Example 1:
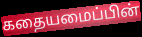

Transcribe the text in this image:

கதையமைப்பின்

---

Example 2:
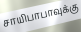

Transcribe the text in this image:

சாயிபாபாவுக்கு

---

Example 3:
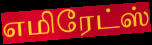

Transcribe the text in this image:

எமிரேட்ஸ்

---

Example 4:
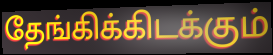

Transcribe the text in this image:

தேங்கிக்கிடக்கும்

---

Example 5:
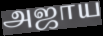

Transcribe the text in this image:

அஜாய